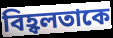
বিহ্বলতাকে